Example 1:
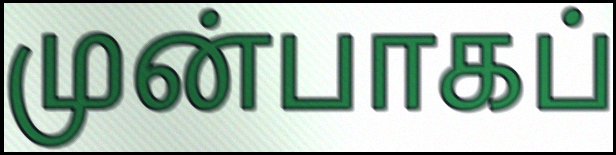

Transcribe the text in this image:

முன்பாகப்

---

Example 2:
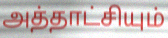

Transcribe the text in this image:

அத்தாட்சியும்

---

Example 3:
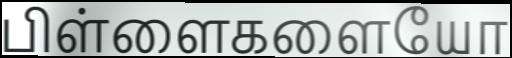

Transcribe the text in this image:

பிள்ளைகளையோ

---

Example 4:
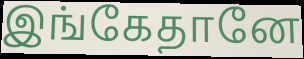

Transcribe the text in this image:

இங்கேதானே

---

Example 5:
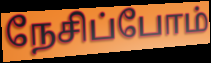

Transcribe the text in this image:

நேசிப்போம்